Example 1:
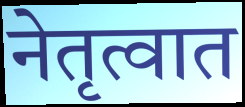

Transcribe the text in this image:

नेतृत्वात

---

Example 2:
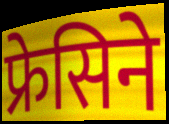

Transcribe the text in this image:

फ्रेसिने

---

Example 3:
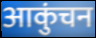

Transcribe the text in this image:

आकुंचन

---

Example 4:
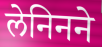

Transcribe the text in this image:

लेनिनने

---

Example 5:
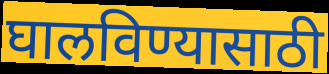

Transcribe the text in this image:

घालविण्यासाठी